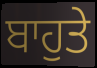
ਬਾਹੁਤੇ